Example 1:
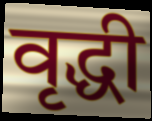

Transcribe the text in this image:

वृद्धी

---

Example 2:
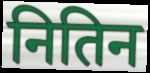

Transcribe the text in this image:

नितिन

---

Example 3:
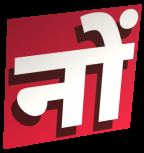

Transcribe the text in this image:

नों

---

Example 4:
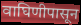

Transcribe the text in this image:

वाघिणीपासून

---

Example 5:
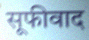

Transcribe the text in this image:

सूफीवाद